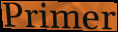
Primer